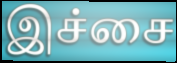
இச்சை